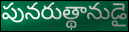
పునరుత్థానుడై